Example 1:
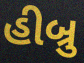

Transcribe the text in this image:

હીબ્રુ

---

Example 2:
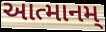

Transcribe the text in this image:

આત્માનમ્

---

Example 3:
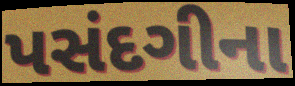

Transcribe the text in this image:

પસંદગીના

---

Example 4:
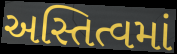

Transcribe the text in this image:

અસ્તિત્વમાં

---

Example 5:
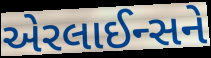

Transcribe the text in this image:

એરલાઈન્સને